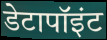
डेटापॉइंट